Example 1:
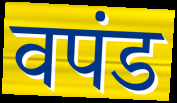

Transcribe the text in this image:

वपंड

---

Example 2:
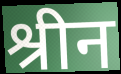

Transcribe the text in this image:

श्रीन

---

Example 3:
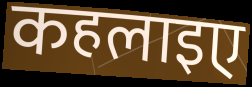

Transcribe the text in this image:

कहलाइए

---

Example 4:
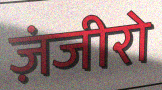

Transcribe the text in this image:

ज़ंजीरो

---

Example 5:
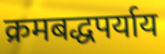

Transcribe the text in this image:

क्रमबद्धपर्याय